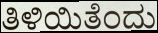
ತಿಳಿಯಿತೆಂದು